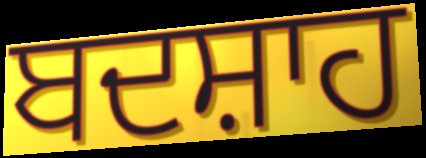
ਬਦਸ਼ਾਹ